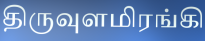
திருவுளமிரங்கி